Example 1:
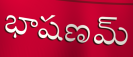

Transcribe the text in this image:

భాషణమ్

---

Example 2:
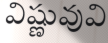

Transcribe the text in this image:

విష్ణువువి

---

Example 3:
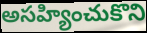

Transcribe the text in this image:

అసహ్యించుకొని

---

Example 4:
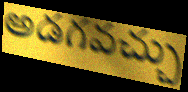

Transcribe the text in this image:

అడగవచ్చు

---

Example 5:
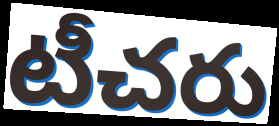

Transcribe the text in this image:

టీచరు